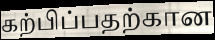
கற்பிப்பதற்கான